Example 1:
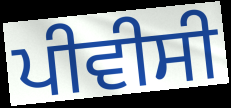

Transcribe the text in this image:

ਪੀਵੀਸੀ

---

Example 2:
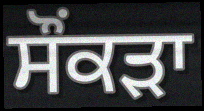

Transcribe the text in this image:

ਸੌਂਕੜਾ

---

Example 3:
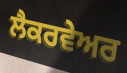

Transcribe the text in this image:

ਲੈਕਰਵੇਅਰ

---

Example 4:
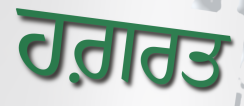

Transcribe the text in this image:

ਹਗ਼ਰਤ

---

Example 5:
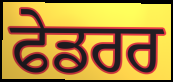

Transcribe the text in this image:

ਫੇਡਰਰ